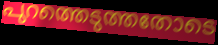
പുറത്തെടുത്തതോടെ